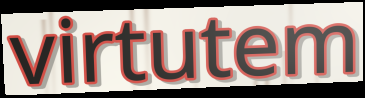
virtutem